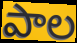
పాల